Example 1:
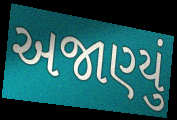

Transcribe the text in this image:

અજાણ્યું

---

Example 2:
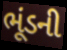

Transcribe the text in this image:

ભૂંડની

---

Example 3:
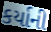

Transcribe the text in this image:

કર્યાની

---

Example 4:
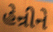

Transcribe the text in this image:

હેન્રીને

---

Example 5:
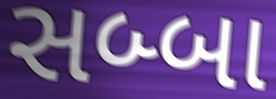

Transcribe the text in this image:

સબ્બા